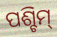
ପଶ୍ଚିମ୍